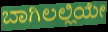
ಬಾಗಿಲಲ್ಲಿಯೇ